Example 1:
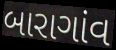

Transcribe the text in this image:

બારાગાંવ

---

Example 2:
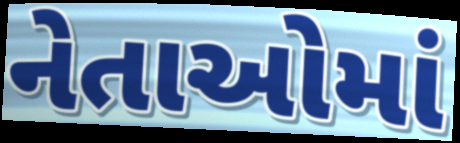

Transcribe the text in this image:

નેતાઓમાં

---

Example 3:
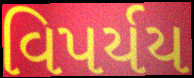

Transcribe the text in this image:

વિપર્યય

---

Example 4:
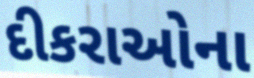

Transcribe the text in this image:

દીકરાઓના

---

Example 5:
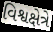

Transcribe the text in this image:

વિશ્વક્ષેત્રે